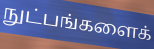
நுட்பங்களைக்